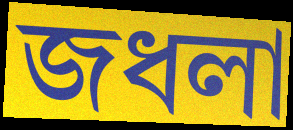
জধলা